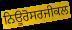
ਨਿਊਰੋਸਰਜੀਕਲ